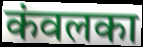
कंवलका